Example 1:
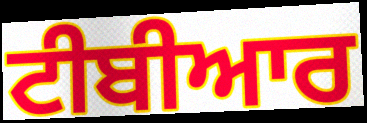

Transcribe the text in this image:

ਟੀਬੀਆਰ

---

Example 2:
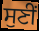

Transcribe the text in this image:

ਸੁਣੀਂ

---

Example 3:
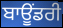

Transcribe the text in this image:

ਬਾਊਂਡਰੀ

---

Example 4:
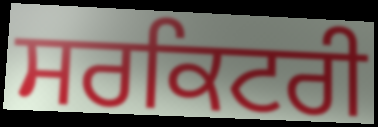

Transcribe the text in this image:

ਸਰਕਿਟਰੀ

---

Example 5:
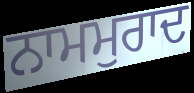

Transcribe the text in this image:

ਨਾਮਮੁਰਾਦ